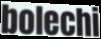
bolechi